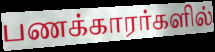
பணக்காரர்களில்